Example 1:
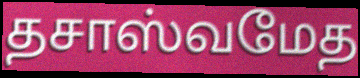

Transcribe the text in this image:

தசாஸ்வமேத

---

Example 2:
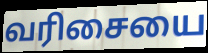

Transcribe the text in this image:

வரிசையை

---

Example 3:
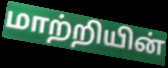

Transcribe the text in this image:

மாற்றியின்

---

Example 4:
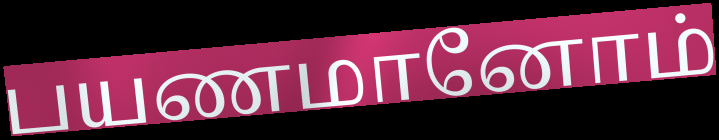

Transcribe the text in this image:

பயணமானோம்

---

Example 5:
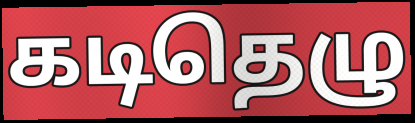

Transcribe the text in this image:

கடிதெழு